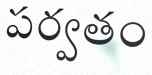
పర్వతం